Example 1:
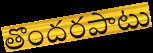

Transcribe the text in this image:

తొందరపాటు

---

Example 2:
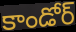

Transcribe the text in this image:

కాండోర్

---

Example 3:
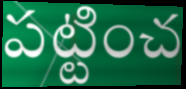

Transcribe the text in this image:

పట్టించ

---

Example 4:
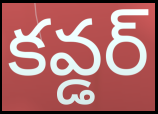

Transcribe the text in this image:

కవ్డర్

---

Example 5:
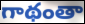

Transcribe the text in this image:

గాథంతా